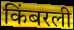
किंबरली